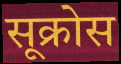
सूक्रोस